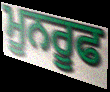
ਮੂਨਰੂਫ